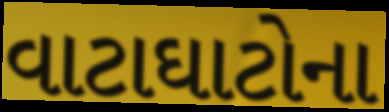
વાટાઘાટોના